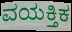
ವಯಕ್ತಿಕ